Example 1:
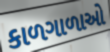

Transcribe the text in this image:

કાળગાળાઓ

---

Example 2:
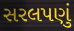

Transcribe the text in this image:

સરલપણું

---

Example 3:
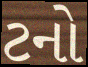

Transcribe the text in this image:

ટનો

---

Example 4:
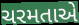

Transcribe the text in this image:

ચરમતાએ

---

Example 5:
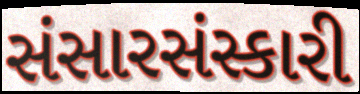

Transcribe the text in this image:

સંસારસંસ્કારી